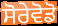
ਸੋਰੇਵੋਡੋ